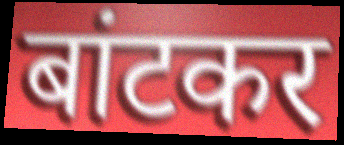
बांटकर